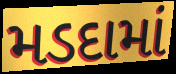
મડદામાં